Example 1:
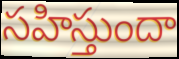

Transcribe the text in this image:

సహిస్తుందా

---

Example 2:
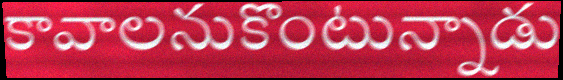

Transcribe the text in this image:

కావాలనుకొంటున్నాడు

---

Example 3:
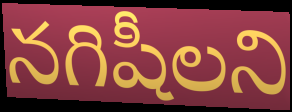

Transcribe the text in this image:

నగిషీలని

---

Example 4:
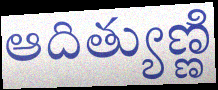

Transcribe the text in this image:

ఆదిత్యుణ్ణి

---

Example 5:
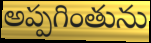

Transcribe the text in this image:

అప్పగింతును